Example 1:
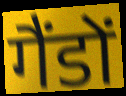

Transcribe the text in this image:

गैंडों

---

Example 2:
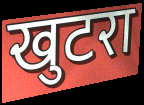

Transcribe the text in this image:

खुटरा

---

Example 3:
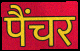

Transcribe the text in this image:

पैंचर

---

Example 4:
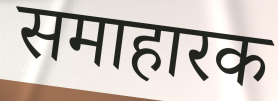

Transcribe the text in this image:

समाहारक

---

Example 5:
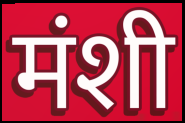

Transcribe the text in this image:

मंशी